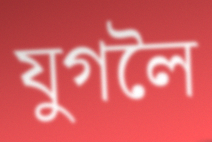
যুগলৈ